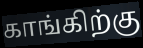
காங்கிற்கு